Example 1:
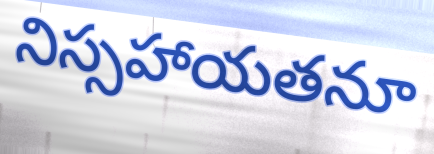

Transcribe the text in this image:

నిస్సహాయతనూ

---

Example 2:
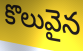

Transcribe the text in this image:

కొలువైన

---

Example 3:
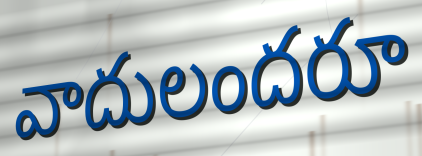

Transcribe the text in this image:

వాదులందరూ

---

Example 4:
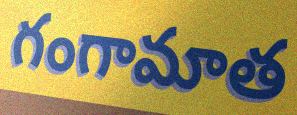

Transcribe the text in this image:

గంగామాత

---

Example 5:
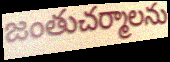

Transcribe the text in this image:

జంతుచర్మాలను